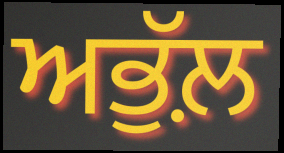
ਅਭੁੱਲ਼